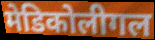
मेडिकोलीगल